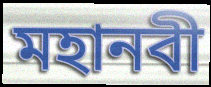
মহানবী